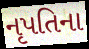
નૃપતિના